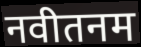
नवीतनम